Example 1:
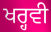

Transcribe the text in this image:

ਖਰ੍ਹਵੀ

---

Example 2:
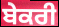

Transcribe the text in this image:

ਬੇਕਰੀ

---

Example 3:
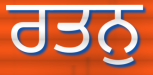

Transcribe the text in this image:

ਰਤਨੁ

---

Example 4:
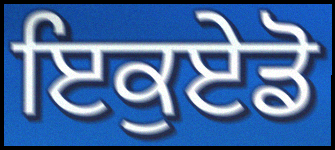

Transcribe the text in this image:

ਇਕੁਏਡੋ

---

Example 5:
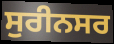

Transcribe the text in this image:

ਸੁਰੀਨਸਰ